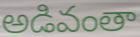
అడివంతా